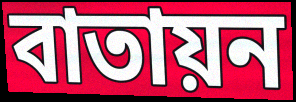
বাতায়ন